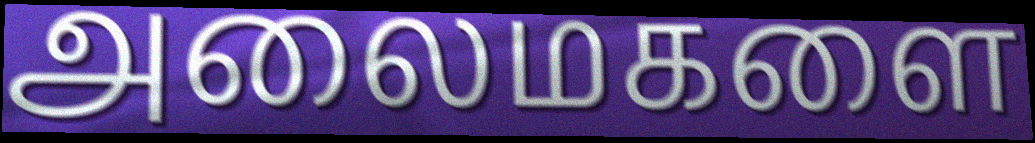
அலைமகளை